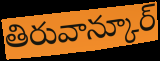
తిరువాన్కూర్